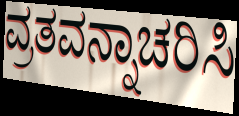
ವ್ರತವನ್ನಾಚರಿಸಿ